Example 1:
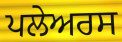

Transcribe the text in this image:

ਪਲੇਅਰਸ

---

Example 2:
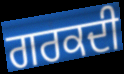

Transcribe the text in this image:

ਗਰਕਦੀ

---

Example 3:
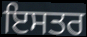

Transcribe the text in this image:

ਇਸਤਰ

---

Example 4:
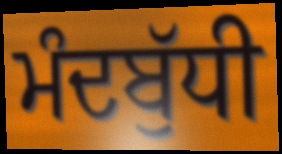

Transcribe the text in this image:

ਮੰਦਬੁੱਧੀ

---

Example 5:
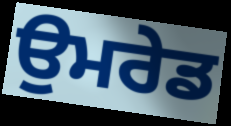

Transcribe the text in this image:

ਉਮਰੇਡ